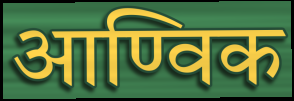
आण्विक